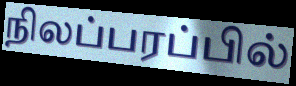
நிலப்பரப்பில்